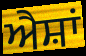
ਐਸ਼ਾਂ